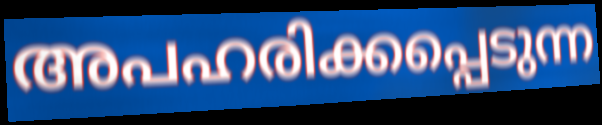
അപഹരിക്കപ്പെടുന്ന